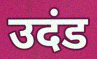
उदंड